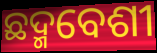
ଛଦ୍ମବେଶୀ